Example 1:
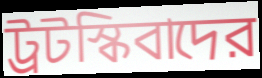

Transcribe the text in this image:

ট্রটস্কিবাদের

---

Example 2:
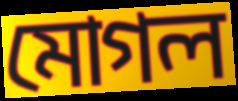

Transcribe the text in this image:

মোগল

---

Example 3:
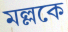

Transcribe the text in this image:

মল্লকে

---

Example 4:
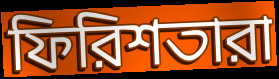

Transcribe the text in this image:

ফিরিশতারা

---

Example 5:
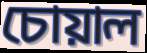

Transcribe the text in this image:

চোয়াল